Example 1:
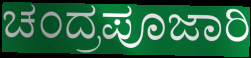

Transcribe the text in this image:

ಚಂದ್ರಪೂಜಾರಿ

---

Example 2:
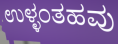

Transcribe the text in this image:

ಉಳ್ಳಂತಹವು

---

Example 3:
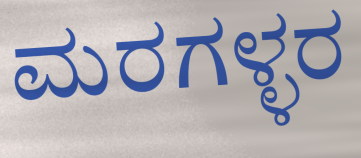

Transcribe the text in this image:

ಮರಗಳ್ಳರ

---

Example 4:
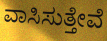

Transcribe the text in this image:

ವಾಸಿಸುತ್ತೇವೆ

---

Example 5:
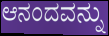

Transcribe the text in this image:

ಆನಂದವನ್ನು